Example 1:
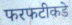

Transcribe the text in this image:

फरफटीकडे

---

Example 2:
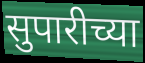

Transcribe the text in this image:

सुपारीच्या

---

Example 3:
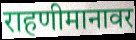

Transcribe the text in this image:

राहणीमानावर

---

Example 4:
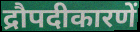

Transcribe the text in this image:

द्रौपदीकारणें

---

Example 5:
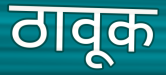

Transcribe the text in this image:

ठावूक